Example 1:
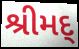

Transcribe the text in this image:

શ્રીમદ્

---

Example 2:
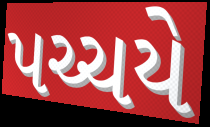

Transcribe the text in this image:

પચ્ચયે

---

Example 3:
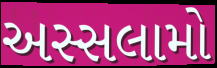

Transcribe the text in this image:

અસ્સલામો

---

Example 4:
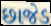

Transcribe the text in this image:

છાજેડ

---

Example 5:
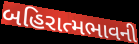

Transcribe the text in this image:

બહિરાત્મભાવની